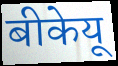
बीकेयू